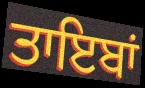
ਤਾਇਬਾਂ